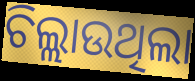
ଚିଲ୍ଲାଉଥିଲା